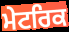
ਮੇਟਰਿਕ